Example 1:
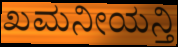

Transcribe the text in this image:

ಖಮನೀಯನ್ತಿ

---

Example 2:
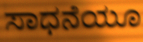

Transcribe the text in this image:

ಸಾಧನೆಯೂ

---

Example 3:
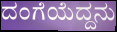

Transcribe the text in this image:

ದಂಗೆಯೆದ್ದನು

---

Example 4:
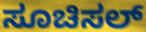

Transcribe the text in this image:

ಸೂಚಿಸಲ್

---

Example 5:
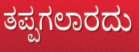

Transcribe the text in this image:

ತಪ್ಪಗಲಾರದು